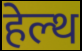
हेल्‍थ